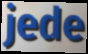
jede